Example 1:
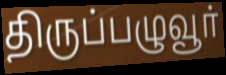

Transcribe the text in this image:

திருப்பழுவூர்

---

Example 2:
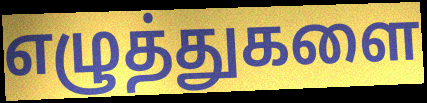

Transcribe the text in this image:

எழுத்துகளை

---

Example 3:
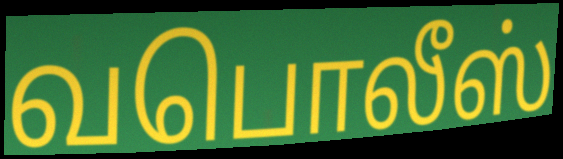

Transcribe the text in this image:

வபொலீஸ்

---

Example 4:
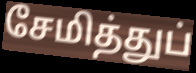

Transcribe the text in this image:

சேமித்துப்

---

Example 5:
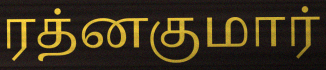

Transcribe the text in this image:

ரத்னகுமார்